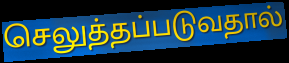
செலுத்தப்படுவதால்